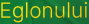
Eglonului